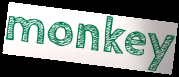
monkey